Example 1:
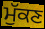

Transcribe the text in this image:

ਮੁੱਕਣ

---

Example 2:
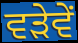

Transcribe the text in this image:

ਵੜੇਵੇਂ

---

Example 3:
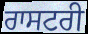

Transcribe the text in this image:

ਰਾਸਟਰੀ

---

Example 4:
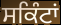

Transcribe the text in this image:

ਸਕਿੰਟਾਂ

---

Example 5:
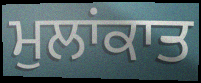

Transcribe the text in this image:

ਮੁਲਾਂਕਾਤ